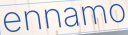
ennamo